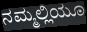
ನಮ್ಮಲ್ಲಿಯೂ